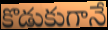
కొడుకుగానే